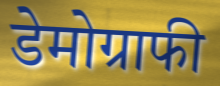
डेमोग्राफी